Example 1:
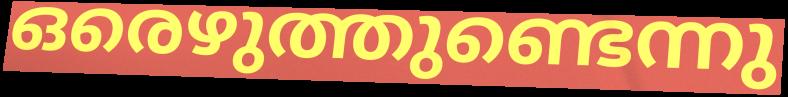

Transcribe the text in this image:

ഒരെഴുത്തുണ്ടെന്നു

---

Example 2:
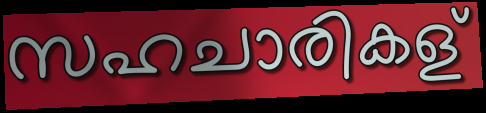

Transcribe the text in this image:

സഹചാരികള്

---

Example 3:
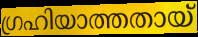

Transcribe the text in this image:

ഗ്രഹിയാത്തതായ്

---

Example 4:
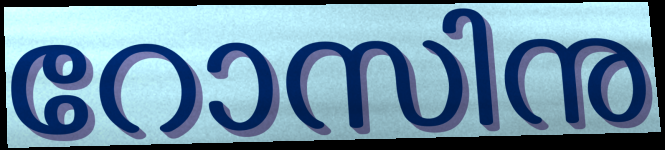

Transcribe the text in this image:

റോസിനു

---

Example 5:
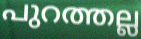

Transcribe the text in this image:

പുറത്തല്ല